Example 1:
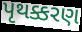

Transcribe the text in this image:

પૃથક્કરણ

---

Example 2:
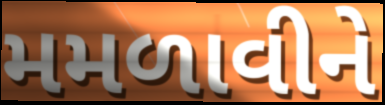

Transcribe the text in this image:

મમળાવીને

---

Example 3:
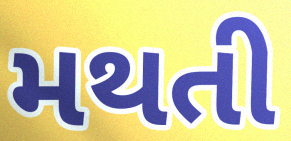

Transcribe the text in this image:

મથતી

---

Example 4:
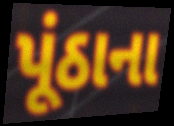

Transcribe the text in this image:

પૂંઠાના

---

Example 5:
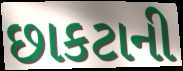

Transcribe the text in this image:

છાકટાની